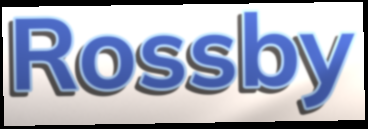
Rossby